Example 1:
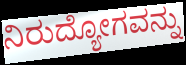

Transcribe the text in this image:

ನಿರುದ್ಯೋಗವನ್ನು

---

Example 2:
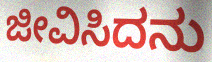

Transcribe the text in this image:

ಜೀವಿಸಿದನು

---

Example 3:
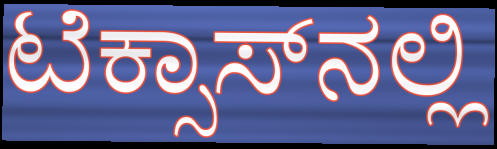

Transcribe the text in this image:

ಟೆಕ್ಸಾಸ್‌ನಲ್ಲಿ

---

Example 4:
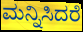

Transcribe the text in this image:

ಮನ್ನಿಸಿದರೆ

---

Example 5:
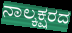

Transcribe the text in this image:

ನಾಲ್ಕಕ್ಷರದ